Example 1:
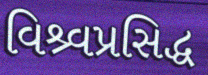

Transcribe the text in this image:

વિશ્ર્વપ્રસિદ્ધ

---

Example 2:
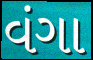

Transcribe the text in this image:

વંગા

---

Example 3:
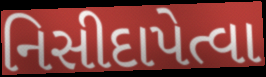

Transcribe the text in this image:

નિસીદાપેત્વા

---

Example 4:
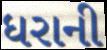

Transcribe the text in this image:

ધરાની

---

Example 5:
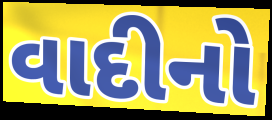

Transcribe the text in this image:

વાદીનો